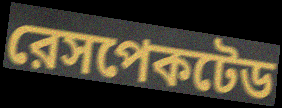
রেসপেকটেড